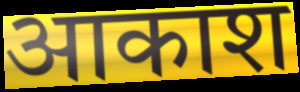
आकाश